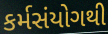
કર્મસંયોગથી